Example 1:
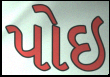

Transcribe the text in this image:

પોઇ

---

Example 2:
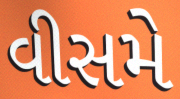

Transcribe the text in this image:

વીસમે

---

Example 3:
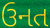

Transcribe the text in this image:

ઉનત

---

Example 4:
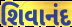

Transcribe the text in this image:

શિવાનંદ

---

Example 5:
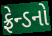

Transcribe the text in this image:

ફ્રેન્ડનો